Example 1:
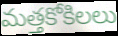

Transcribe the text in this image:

మత్తకోకిలలు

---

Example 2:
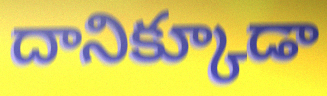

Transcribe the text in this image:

దానిక్కూడా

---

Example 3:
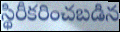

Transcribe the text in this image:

స్థిరీకరించబడిన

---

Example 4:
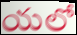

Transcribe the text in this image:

యలో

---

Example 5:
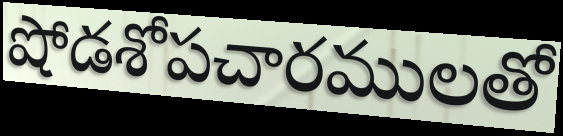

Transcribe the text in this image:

షోడశోపచారములతో